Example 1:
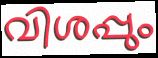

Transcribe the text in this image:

വിശപ്പും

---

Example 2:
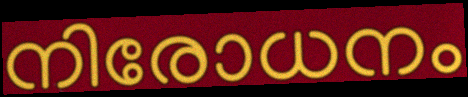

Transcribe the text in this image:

നിരോധനം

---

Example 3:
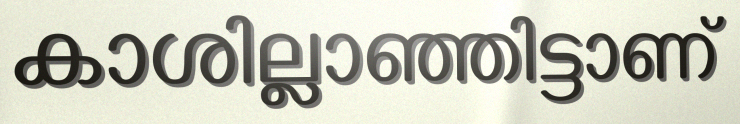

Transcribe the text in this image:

കാശില്ലാഞ്ഞിട്ടാണ്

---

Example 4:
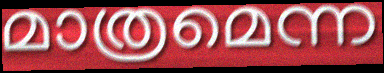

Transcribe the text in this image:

മാത്രമെന്ന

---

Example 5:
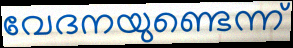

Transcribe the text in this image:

വേദനയുണ്ടെന്ന്